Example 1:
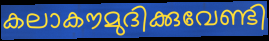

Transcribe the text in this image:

കലാകൗമുദിക്കുവേണ്ടി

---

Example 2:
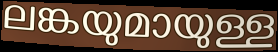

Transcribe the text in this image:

ലങ്കയുമായുള്ള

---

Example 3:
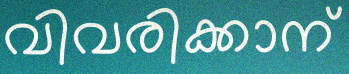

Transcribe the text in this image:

വിവരിക്കാന്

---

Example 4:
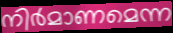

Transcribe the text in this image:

നിർമാണമെന്ന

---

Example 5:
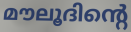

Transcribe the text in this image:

മൗലൂദിന്റെ